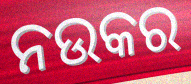
ନଉକର